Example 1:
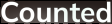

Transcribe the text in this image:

Counted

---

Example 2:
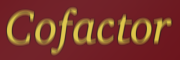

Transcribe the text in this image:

Cofactor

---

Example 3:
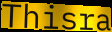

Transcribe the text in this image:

Thisra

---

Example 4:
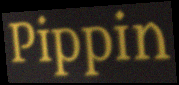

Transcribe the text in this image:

Pippin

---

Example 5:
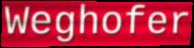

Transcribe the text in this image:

Weghofer